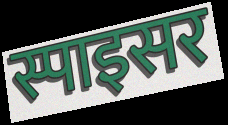
स्पाइसर